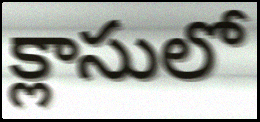
క్లాసులో